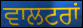
ਵਾਲਟਰਾਂ